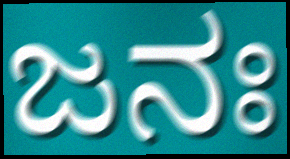
ಜನಃ